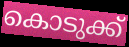
കൊടുക്ക്